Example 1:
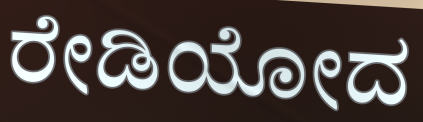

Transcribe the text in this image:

ರೇಡಿಯೋದ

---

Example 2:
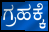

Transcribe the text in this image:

ಗ್ರಹಕ್ಕೆ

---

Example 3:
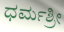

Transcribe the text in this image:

ಧರ್ಮಶ್ರೀ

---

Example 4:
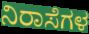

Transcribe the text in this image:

ನಿರಾಸೆಗಳ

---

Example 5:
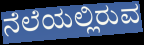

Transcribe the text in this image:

ನೆಲೆಯಲ್ಲಿರುವ